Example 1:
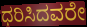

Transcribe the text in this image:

ಧರಿಸಿದವರೇ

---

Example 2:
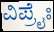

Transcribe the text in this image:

ವಿಪ್ರೈಃ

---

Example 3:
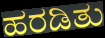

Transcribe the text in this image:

ಹರಡಿತು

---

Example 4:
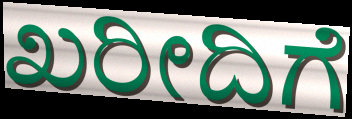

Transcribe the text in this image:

ಖರೀದಿಗೆ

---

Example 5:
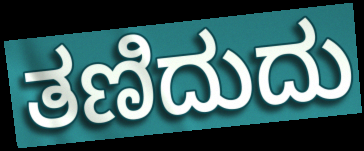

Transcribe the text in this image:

ತಣಿದುದು